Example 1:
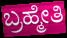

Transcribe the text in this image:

ಬ್ರಹ್ಮೇತಿ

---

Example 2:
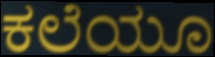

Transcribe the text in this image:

ಕಲೆಯೂ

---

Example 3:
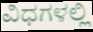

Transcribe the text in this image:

ವಿಧಗಳಲ್ಲಿ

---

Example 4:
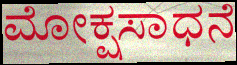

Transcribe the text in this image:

ಮೋಕ್ಷಸಾಧನೆ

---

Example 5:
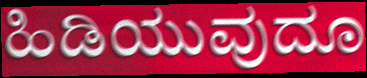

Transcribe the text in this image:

ಹಿಡಿಯುವುದೂ